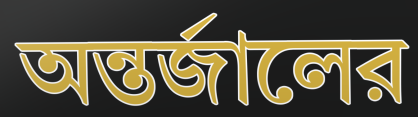
অন্তর্জালের